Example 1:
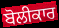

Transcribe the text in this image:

ਬੋਲੀਕਾਰ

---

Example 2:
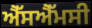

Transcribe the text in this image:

ਐੱਸਐੱਮਸੀ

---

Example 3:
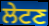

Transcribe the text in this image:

ਲੇਟਣ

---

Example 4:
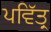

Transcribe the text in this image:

ਪਵਿੱਤ੍ਰ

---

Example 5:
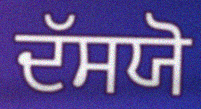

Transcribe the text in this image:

ਦੱਸਯੋ